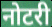
नोटरी